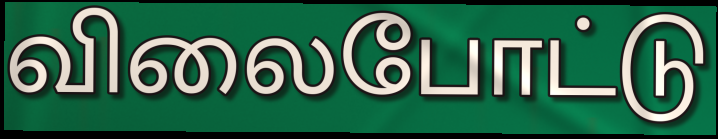
விலைபோட்டு